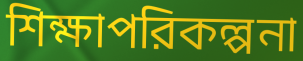
শিক্ষাপরিকল্পনা